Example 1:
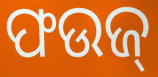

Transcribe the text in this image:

ଫଉଜ୍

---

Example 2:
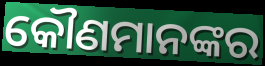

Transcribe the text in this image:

କୌଣମାନଙ୍କର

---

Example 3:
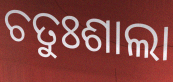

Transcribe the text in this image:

ଚତୁଃଶାଲା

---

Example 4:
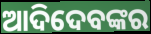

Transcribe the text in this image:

ଆଦିଦେବଙ୍କର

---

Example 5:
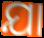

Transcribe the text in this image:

ଯା